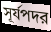
সূর্যপদর